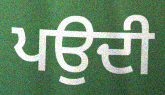
ਪਉਦੀ